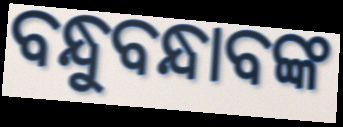
ବନ୍ଧୁବନ୍ଧାବଙ୍କ